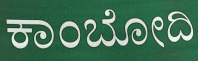
ಕಾಂಬೋದಿ